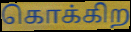
கொக்கிற